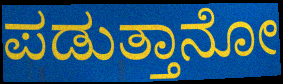
ಪಡುತ್ತಾನೋ